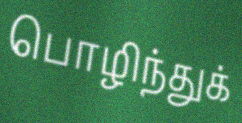
பொழிந்துக்